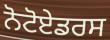
ਨੋਟੋਏਡਰਸ